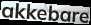
akkebare